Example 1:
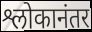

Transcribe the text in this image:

श्लोकानंतर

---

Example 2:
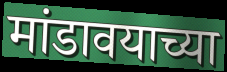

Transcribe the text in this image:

मांडावयाच्या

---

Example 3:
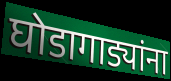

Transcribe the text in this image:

घोडागाड्यांना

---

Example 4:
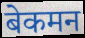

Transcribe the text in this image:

बेकमन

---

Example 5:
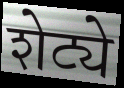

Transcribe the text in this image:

शेट्ये